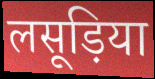
लसूड़िया